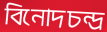
বিনোদচন্দ্র